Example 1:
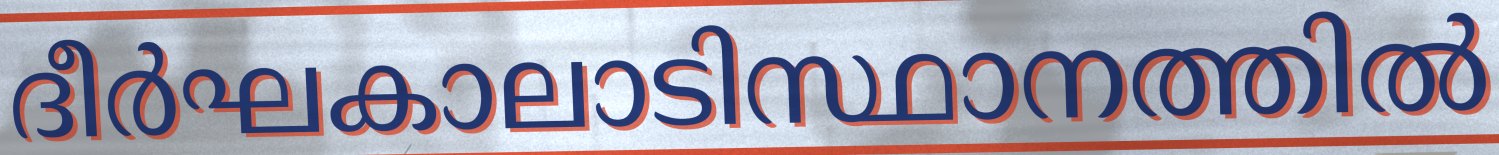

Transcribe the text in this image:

ദീർഘകാലാടിസ്ഥാനത്തിൽ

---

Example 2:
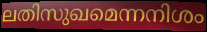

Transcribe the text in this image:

ലതിസുഖമെന്നനിശം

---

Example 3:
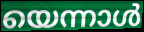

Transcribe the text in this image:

യെന്നാൾ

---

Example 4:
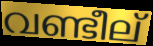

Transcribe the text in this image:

വണ്ടീല്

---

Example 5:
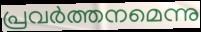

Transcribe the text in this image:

പ്രവർത്തനമെന്നു